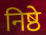
निष्ठे